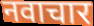
नवाचार